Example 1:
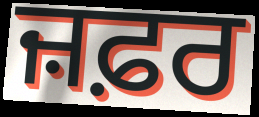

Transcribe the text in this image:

ਜ਼ਫ਼ਰ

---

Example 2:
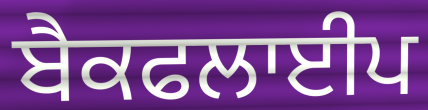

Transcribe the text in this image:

ਬੈਕਫਲਾਈਪ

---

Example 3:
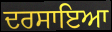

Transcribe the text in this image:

ਦਰਸਾਇਆ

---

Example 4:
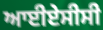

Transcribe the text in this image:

ਆਈਏਸੀਸੀ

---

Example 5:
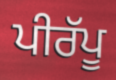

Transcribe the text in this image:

ਪੀਰੱਪੂ